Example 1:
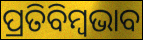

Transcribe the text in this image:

ପ୍ରତିବିମ୍ବଭାବ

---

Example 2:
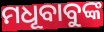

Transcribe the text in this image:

ମଧୂବାବୁଙ୍କ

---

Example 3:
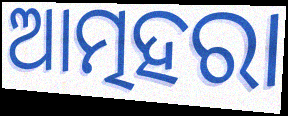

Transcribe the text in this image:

ଆତ୍ମହରା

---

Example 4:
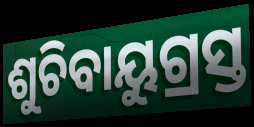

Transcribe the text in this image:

ଶୁଚିବାୟୁଗ୍ରସ୍ତ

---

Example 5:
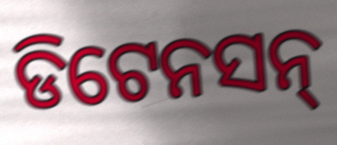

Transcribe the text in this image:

ଡିଟେନସନ୍